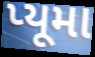
પ્યૂમા